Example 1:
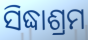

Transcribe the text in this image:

ସିଦ୍ଧାଶ୍ରମ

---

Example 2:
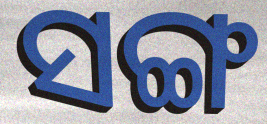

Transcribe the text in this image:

ସଙ୍ଗ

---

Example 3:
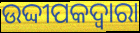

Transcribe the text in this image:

ଉଦ୍ଦୀପକଦ୍ବାରା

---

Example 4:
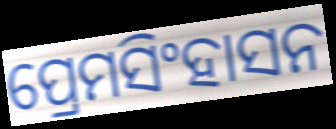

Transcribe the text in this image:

ପ୍ରେମସିଂହାସନ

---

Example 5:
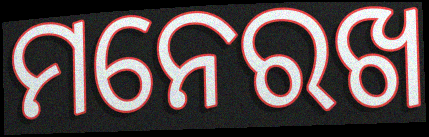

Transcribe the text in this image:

ମନେରଖ